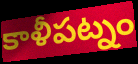
కాళీపట్నం